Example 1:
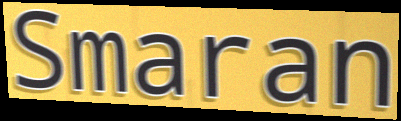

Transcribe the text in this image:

Smaran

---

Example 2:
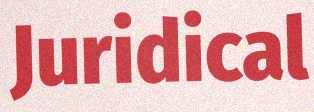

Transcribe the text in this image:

Juridical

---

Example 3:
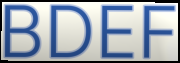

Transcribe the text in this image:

BDEF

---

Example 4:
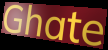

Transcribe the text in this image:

Ghate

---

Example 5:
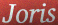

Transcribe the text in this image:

Joris